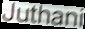
Juthani